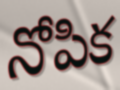
నోపిక